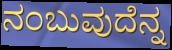
ನಂಬುವುದೆನ್ನ